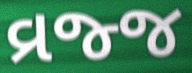
વ્રજ્જ